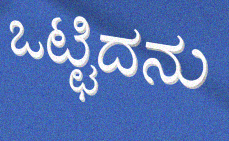
ಒಟ್ಟಿದನು